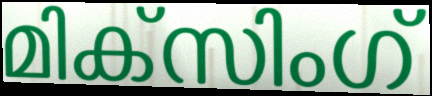
മിക്‌സിംഗ്